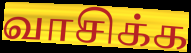
வாசிக்க